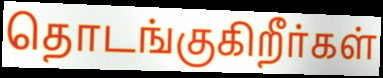
தொடங்குகிறீர்கள்